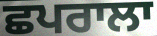
ਛਪਰਾਲਾ